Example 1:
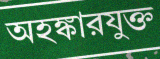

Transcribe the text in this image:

অহঙ্কারযুক্ত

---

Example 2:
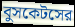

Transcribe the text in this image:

বুসকেটসের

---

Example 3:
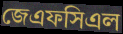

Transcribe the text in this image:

জেএফসিএল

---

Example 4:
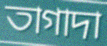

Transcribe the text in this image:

তাগাদা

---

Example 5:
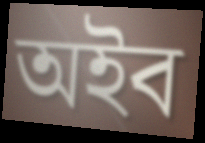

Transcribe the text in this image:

অইব